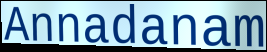
Annadanam